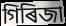
গিৰিজা